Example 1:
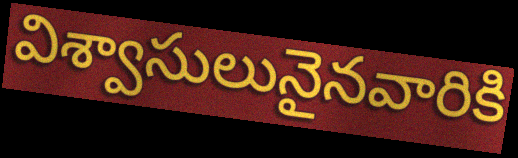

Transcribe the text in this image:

విశ్వాసులునైనవారికి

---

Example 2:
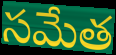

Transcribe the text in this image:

సమేత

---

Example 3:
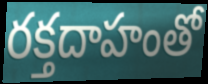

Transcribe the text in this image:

రక్తదాహంతో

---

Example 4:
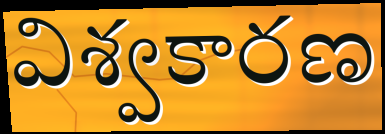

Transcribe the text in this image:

విశ్వకారణ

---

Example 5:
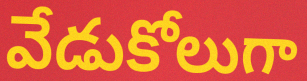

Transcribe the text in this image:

వేడుకోలుగా